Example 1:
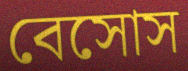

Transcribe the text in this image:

বেসোস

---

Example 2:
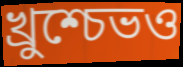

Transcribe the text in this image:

খ্রুশ্চেভও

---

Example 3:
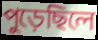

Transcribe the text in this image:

পুড়েছিলে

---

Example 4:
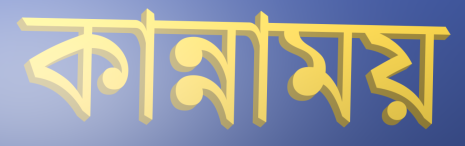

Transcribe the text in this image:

কান্নাময়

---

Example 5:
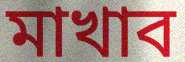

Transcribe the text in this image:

মাখাব